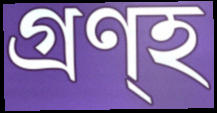
গ্ৰণ্হ